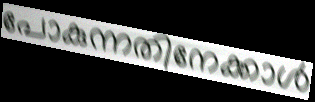
പോകുന്നതിനേക്കാൾ